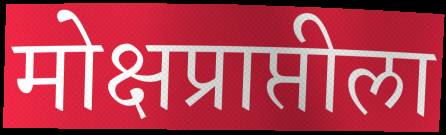
मोक्षप्राप्तीला